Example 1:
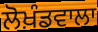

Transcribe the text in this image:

ਲੋਖ਼ੰਡਵਾਲਾ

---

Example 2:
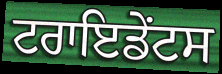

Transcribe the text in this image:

ਟਰਾਇਡੇਂਟਸ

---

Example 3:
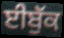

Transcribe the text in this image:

ਈਬੁੱਕ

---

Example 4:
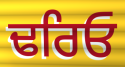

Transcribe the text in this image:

ਢਰਿਓ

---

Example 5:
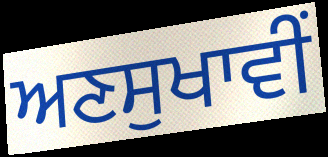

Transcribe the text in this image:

ਅਣਸੁਖਾਵੀਂ